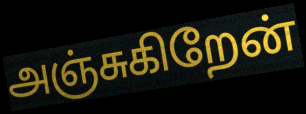
அஞ்சுகிறேன்